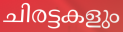
ചിരട്ടകളും